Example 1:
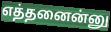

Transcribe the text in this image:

எத்தனைன்னு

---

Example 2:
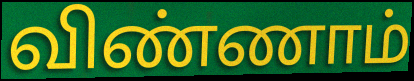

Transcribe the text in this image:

விண்ணாம்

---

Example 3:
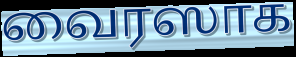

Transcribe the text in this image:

வைரஸாக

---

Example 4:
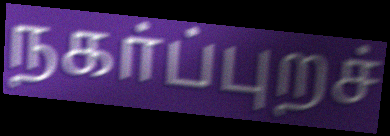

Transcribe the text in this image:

நகர்ப்புறச்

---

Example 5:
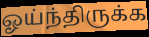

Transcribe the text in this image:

ஓய்ந்திருக்க